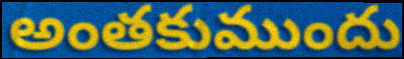
అంతకుముందు